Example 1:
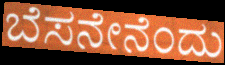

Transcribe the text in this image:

ಬೆಸನೇನೆಂದು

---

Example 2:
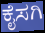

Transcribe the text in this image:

ಕೈಸಗಿ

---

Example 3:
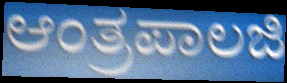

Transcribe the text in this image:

ಆಂತ್ರಪಾಲಜಿ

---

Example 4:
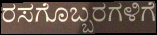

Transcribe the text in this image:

ರಸಗೊಬ್ಬರಗಳಿಗೆ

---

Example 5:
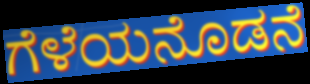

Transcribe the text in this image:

ಗೆಳೆಯನೊಡನೆ